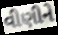
વીણીને